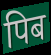
पिब